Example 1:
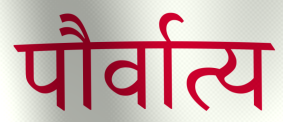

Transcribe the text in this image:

पौर्वात्य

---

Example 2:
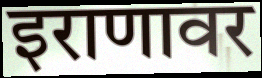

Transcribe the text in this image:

इराणावर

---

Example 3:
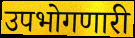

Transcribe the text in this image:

उपभोगणारी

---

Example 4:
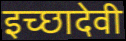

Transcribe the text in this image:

इच्छादेवी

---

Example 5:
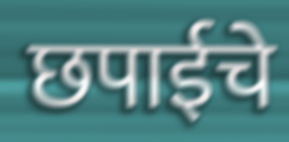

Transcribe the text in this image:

छपाईचे